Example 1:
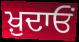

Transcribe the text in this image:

ਖ਼ੁਦਾਓਂ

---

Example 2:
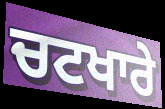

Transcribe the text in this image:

ਚਟਖਾਰੇ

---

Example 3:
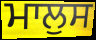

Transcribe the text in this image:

ਮਾਲੁਸ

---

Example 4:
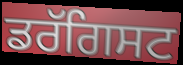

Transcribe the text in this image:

ਡਰੱਗਿਸਟ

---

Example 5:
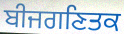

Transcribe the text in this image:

ਬੀਜਗਣਿਤਕ